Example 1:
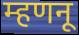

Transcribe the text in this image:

म्हणनू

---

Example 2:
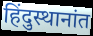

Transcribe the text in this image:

हिंदुस्थानांत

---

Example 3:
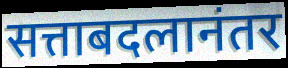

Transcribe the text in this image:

सत्ताबदलानंतर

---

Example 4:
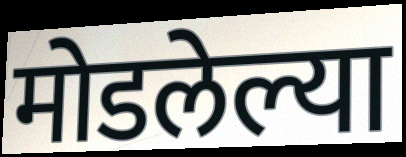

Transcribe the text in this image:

मोडलेल्या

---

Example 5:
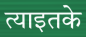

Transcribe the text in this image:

त्याइतके